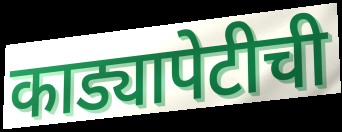
काड्यापेटीची